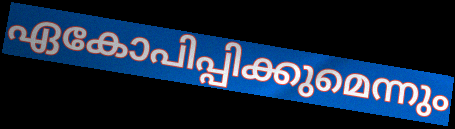
ഏകോപിപ്പിക്കുമെന്നും